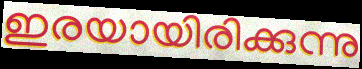
ഇരയായിരിക്കുന്നു